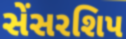
સેંસરશિપ